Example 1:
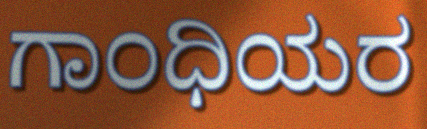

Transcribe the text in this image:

ಗಾಂಧಿಯರ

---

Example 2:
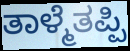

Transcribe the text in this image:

ತಾಳ್ಮೆತಪ್ಪಿ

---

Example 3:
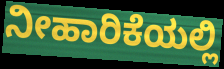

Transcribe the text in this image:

ನೀಹಾರಿಕೆಯಲ್ಲಿ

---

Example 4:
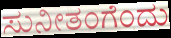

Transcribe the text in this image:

ಸುನೀತಂಗೆಂದು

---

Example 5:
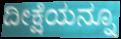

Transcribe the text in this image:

ದೀಕ್ಷೆಯನ್ನೂ